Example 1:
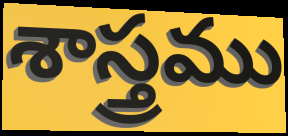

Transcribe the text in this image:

శాస్త్రము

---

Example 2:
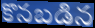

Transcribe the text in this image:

కొనబడిన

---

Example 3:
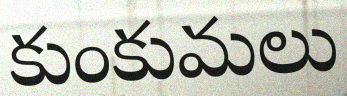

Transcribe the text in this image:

కుంకుమలు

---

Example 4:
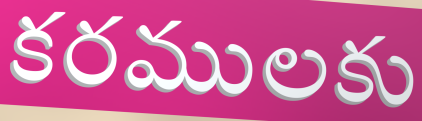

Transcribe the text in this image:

కరములకు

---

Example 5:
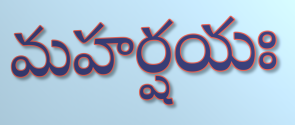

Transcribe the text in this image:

మహర్షయః